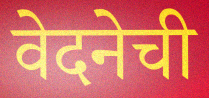
वेदनेची